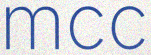
mcc